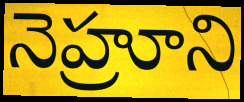
నెహ్రూని